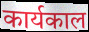
कार्यकाल